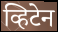
व्हिटेन